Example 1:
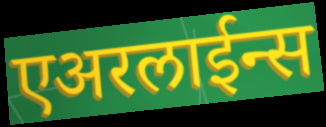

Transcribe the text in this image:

एअरलाईन्स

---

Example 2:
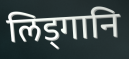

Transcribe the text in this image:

लिड्गानि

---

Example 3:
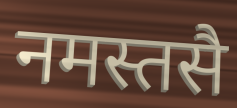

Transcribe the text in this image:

नमस्तसै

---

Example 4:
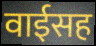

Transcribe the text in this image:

वाईसह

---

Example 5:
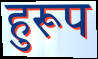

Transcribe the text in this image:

हुरूप